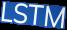
LSTM